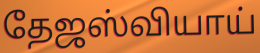
தேஜஸ்வியாய்